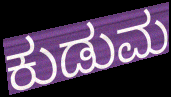
ಕುಡುಮ